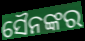
ସୈନଙ୍କର